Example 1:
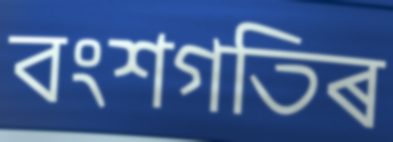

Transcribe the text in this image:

বংশগতিৰ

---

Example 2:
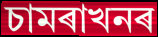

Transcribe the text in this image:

চামৰাখনৰ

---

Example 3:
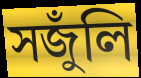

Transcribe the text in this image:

সজুঁলি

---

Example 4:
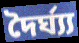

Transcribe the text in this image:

দৈৰ্ঘ্য্য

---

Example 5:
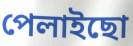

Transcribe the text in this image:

পেলাইছো